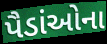
પૈડાંઓના